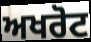
ਅਖਰੋਟ